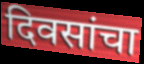
दिवसांचा